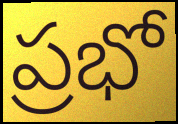
ప్రభో